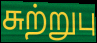
சுற்றுபு